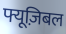
फ्यूज़िबल